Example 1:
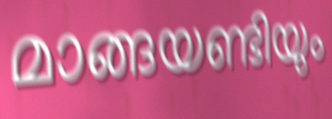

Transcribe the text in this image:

മാങ്ങയണ്ടിയും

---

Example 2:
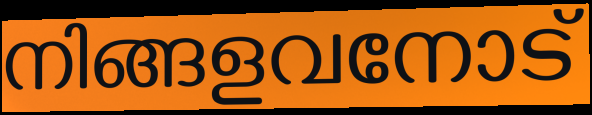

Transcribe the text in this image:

നിങ്ങളവനോട്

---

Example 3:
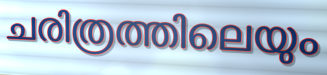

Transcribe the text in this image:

ചരിത്രത്തിലെയും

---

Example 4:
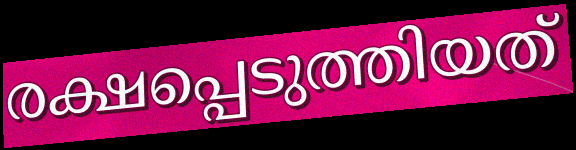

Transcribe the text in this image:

രക്ഷപ്പെടുത്തിയത്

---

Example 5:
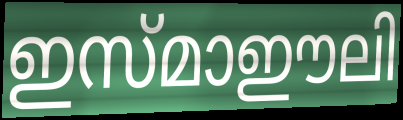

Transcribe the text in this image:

ഇസ്മാഈലി